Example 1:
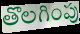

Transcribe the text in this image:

తొలగింపు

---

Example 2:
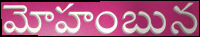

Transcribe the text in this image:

మోహంబున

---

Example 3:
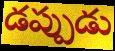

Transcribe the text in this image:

డప్పుడు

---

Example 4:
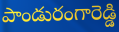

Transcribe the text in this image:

పాండురంగారెడ్డి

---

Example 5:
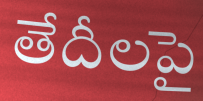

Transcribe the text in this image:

తేదీలపై